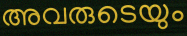
അവരുടെയും